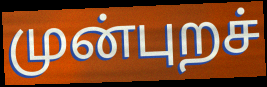
முன்புறச்